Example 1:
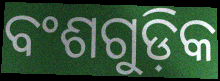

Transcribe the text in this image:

ବଂଶଗୁଡ଼ିକ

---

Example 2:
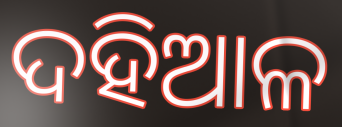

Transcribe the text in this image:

ଦହିଆଳ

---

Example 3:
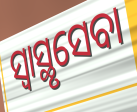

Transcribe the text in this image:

ସ୍ୱାସ୍ଥୃସେବା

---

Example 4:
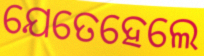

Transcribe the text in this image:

ଯେତେହେଲେ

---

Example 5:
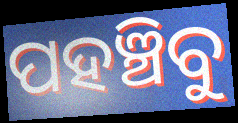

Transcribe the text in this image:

ପହଞ୍ଚିବୁ